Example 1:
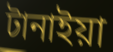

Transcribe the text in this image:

টানাইয়া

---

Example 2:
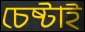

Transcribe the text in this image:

চেষ্টাই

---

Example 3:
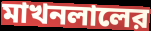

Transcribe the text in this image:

মাখনলালের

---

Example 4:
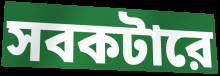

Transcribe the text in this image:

সবকটারে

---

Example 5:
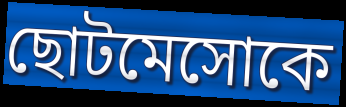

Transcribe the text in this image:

ছোটমেসোকে